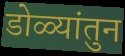
डोळ्यांतुन